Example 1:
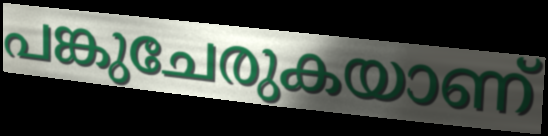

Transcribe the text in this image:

പങ്കുചേരുകയാണ്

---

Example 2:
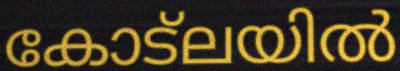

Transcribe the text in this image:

കോട്ലയിൽ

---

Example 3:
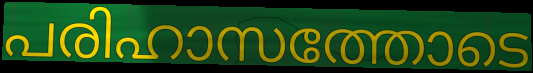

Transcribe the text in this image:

പരിഹാസത്തോടെ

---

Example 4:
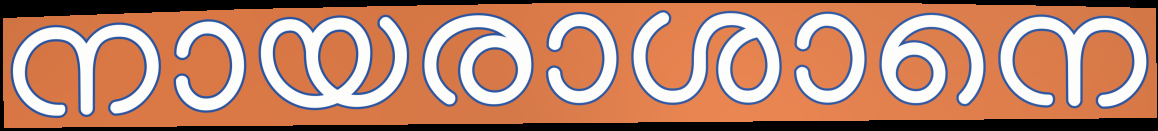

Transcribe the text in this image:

നായരാശാനെ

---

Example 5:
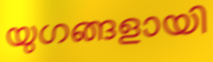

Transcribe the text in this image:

യുഗങ്ങളായി